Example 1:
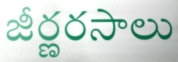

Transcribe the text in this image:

జీర్ణరసాలు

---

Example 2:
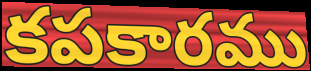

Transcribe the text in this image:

కపకారము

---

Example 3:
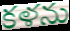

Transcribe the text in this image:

కళను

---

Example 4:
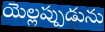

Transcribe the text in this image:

యెల్లప్పుడును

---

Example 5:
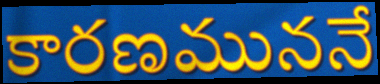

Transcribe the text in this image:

కారణముననే